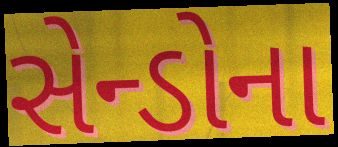
સેન્ડોના